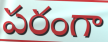
పరంగా